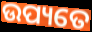
ଉପ୍ୟତେ